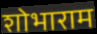
शोभाराम